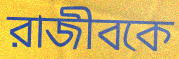
রাজীবকে